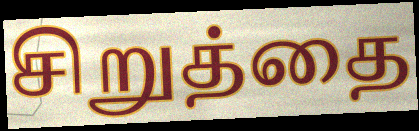
சிறுத்தை